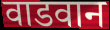
वाडवान